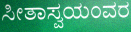
ಸೀತಾಸ್ವಯಂವರ